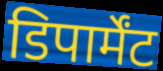
डिपार्मेंट